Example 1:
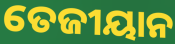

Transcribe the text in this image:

ତେଜୀୟାନ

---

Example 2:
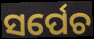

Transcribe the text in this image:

ସର୍ପେଚ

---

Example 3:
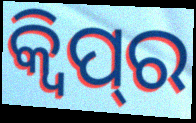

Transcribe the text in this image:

କ୍ଵିପ୍‌ର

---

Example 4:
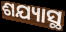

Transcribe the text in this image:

ଶଯ୍ୟାସ୍ଥ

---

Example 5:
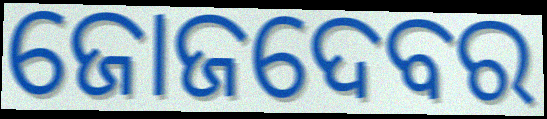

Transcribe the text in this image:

ଜୋଜଦେବର